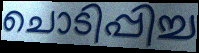
ചൊടിപ്പിച്ച